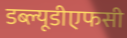
डब्ल्यूडीएफसी